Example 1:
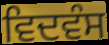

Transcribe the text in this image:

ਵਿਦਵੰਸ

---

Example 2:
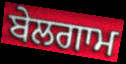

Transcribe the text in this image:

ਬੇਲਗਾਮ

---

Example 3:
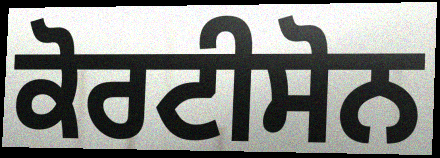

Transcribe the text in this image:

ਕੋਰਟੀਸੋਨ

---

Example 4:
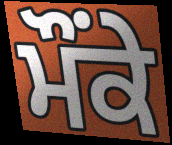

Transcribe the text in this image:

ਮੌੰਕੇ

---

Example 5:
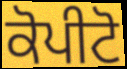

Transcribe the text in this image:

ਕੋਪੀਟੋ